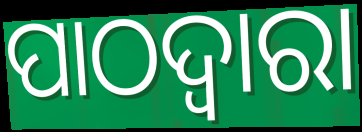
ପାଠଦ୍ଵାରା